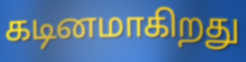
கடினமாகிறது